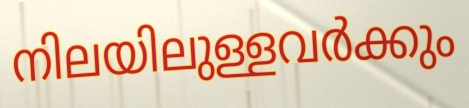
നിലയിലുള്ളവർക്കും